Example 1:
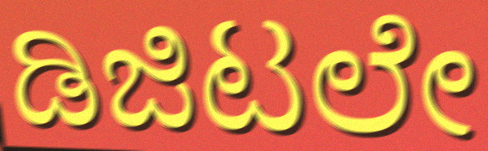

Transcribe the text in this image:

ಡಿಜಿಟಲೇ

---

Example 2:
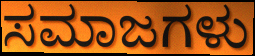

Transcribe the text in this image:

ಸಮಾಜಗಳು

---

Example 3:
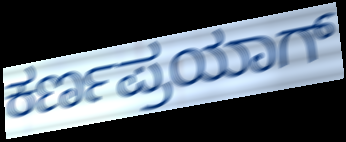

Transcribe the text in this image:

ಕರ್ಣಪ್ರಯಾಗ್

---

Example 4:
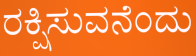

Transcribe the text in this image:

ರಕ್ಷಿಸುವನೆಂದು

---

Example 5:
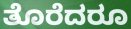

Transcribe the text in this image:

ತೊರೆದರೂ